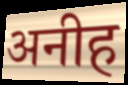
अनीह